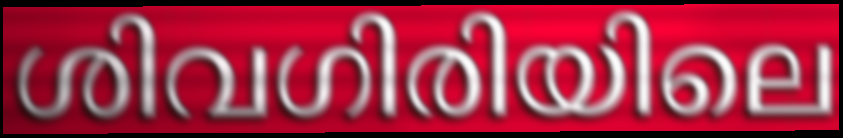
ശിവഗിരിയിലെ